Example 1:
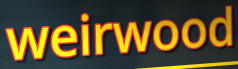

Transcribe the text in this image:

weirwood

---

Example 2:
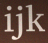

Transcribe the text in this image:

ijk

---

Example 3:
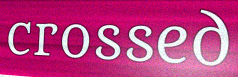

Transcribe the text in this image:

crossed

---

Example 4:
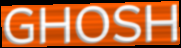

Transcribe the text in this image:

GHOSH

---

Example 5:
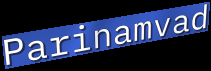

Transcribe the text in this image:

Parinamvad